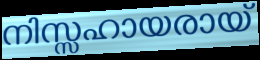
നിസ്സഹായരായ്